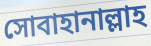
সোবাহানাল্লাহ